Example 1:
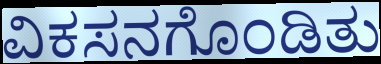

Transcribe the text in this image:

ವಿಕಸನಗೊಂಡಿತು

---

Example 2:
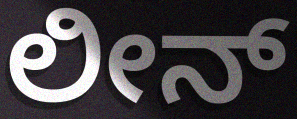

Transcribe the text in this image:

ಲೀನ್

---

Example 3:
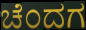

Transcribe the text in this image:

ಚೆಂದಗ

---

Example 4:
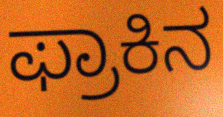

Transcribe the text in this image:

ಫ್ರಾಕಿನ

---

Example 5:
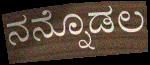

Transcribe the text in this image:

ನನ್ನೊಡಲ